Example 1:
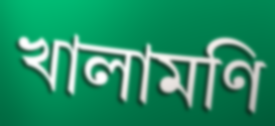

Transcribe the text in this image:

খালামণি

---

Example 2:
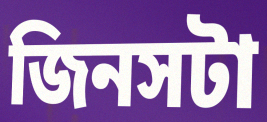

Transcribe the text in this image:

জিনসটা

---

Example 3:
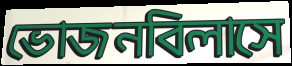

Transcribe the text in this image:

ভোজনবিলাসে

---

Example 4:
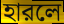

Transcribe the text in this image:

হারলে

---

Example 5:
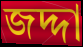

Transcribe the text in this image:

জদ্দা